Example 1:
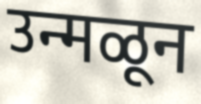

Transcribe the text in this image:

उन्मळून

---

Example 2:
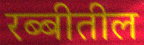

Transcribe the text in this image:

रब्बीतील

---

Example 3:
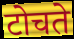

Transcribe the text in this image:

टोचते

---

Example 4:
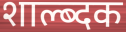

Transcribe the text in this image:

शाल्ब्दक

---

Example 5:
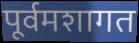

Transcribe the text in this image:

पूर्वमशागत